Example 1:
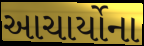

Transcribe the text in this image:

આચાર્યોના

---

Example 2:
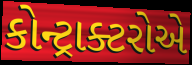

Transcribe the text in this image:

કોન્ટ્રાક્ટરોએ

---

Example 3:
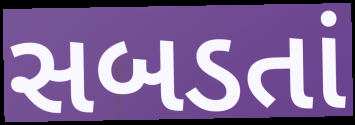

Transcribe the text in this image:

સબડતાં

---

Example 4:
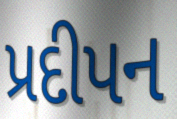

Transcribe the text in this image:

પ્રદીપન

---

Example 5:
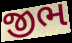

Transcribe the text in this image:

જીભ